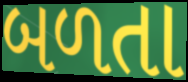
બળતા